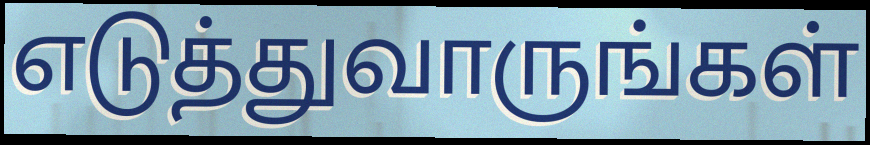
எடுத்துவாருங்கள்